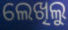
ଲେଖିଲୁ